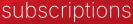
subscriptions